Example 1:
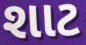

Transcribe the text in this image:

શાટ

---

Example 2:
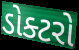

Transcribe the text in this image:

ડોક્ટરો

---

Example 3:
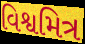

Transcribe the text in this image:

વિશ્વમિત્ર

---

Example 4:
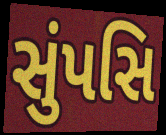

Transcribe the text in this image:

સુંપસિ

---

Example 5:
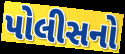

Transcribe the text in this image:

પોલીસનો